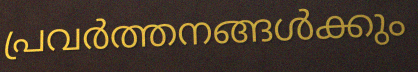
പ്രവർത്തനങ്ങൾക്കും